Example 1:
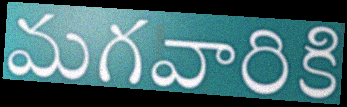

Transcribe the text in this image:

మగవారికి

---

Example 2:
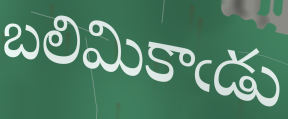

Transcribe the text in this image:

బలిమికాఁడు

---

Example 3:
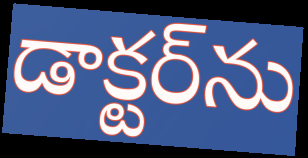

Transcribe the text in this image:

డాక్టర్‌ను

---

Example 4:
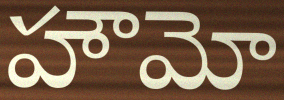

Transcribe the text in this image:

హౌమో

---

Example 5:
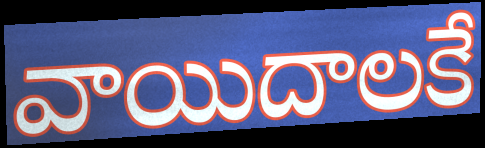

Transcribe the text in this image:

వాయిదాలకే